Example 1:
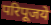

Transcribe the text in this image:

परिपूजये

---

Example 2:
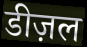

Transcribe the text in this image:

डीज़ल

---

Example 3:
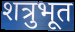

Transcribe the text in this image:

शत्रुभूत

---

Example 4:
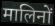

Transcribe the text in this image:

मालिनों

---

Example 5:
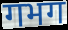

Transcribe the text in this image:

गभग